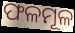
ଫଳମୂଳ